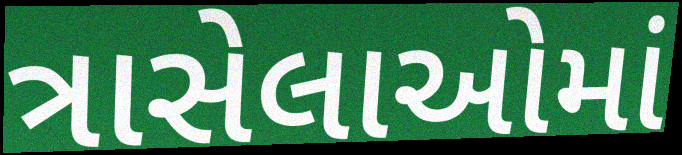
ત્રાસેલાઓમાં